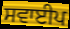
ਸਵਾਈਪ